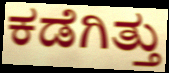
ಕಡೆಗಿತ್ತು